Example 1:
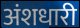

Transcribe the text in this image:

अंशधारी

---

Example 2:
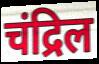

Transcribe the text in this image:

चंद्रिल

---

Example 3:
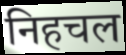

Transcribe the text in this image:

निहचल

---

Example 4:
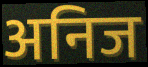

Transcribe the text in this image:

अनिज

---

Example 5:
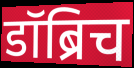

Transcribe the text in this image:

डॉब्रिच